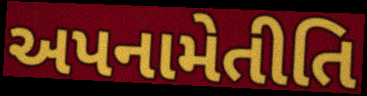
અપનામેતીતિ